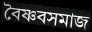
বৈষ্ণবসমাজ